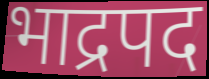
भाद्रपद